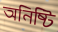
অনিষ্টি